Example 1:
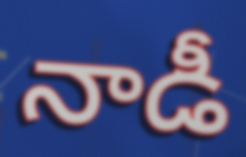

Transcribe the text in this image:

నాడీ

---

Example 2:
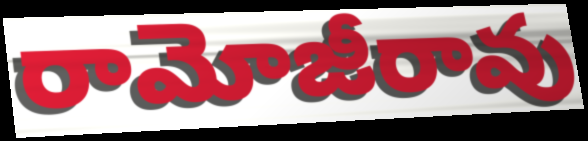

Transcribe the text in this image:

రామోజీరావు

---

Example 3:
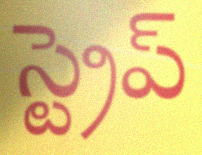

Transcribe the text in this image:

స్ట్రెప్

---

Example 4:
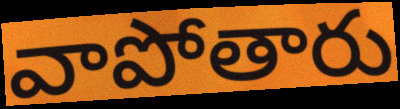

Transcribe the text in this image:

వాపోతారు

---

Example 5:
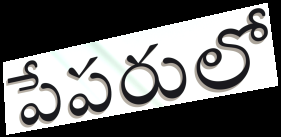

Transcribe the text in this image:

పేపరులో